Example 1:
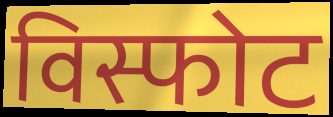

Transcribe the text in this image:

विस्फोट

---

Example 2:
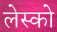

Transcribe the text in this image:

लेस्को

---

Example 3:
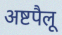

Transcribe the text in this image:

अष्टपैलू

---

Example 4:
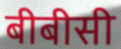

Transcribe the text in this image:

बीबीसी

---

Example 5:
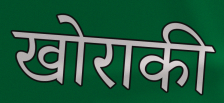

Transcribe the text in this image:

खोराकी